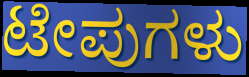
ಟೇಪುಗಳು